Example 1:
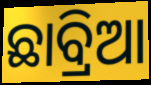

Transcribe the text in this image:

ଛାବ୍ରିଆ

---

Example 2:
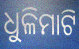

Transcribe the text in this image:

ଧୁଳିମାଟି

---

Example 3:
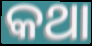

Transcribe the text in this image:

କଥା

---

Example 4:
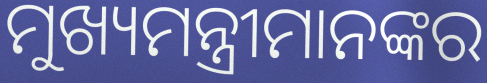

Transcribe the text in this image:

ମୁଖ୍ୟମନ୍ତ୍ରୀମାନଙ୍କର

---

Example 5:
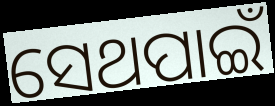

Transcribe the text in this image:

ସେଥପାଇଁ